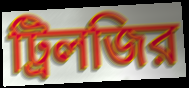
ট্রিলজির